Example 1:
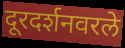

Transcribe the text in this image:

दूरदर्शनवरले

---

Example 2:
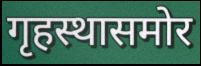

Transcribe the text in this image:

गृहस्थासमोर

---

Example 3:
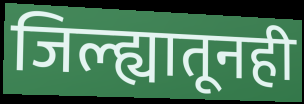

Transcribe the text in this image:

जिल्ह्यातूनही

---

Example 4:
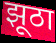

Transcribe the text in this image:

झूठा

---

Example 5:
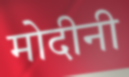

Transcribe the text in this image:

मोदीनी